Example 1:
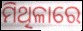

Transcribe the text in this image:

ମିଥିଳାରେ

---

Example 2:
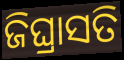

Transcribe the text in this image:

ଜିଘ୍ରାସତି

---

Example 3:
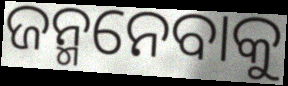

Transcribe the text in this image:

ଜନ୍ମନେବାକୁ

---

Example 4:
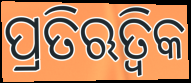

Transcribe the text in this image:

ପ୍ରତିଋତ୍ୱିକ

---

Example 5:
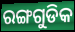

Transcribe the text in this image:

ରଙ୍ଗଗୁଡିକ